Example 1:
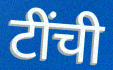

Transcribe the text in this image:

टींची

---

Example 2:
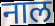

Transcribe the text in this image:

नाल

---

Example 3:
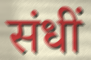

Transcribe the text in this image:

संधीं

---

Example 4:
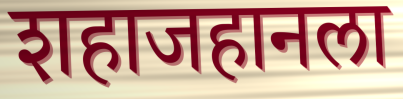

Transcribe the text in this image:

शहाजहानला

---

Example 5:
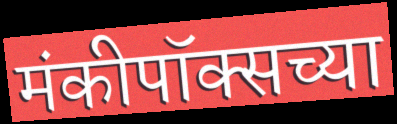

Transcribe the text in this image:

मंकीपॉक्सच्या